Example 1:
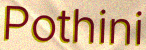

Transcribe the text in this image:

Pothini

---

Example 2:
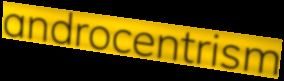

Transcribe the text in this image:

androcentrism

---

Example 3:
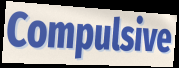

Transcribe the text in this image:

Compulsive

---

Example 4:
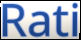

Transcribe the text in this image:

Rati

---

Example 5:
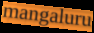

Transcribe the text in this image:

mangaluru